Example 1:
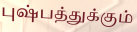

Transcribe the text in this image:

புஷ்பத்துக்கும்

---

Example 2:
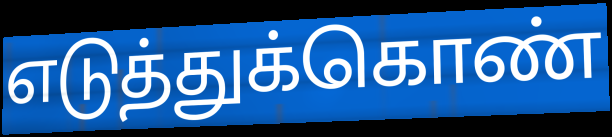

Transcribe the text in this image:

எடுத்துக்கொண்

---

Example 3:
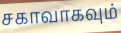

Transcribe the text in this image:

சகாவாகவும்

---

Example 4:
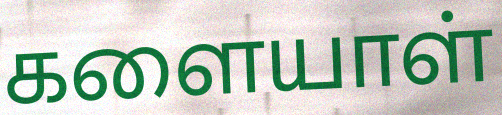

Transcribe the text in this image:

களையாள்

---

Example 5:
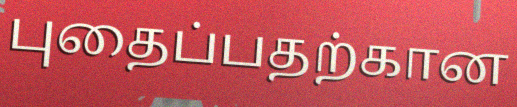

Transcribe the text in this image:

புதைப்பதற்கான